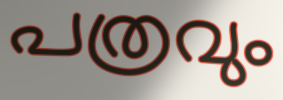
പത്രവും